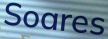
Soares